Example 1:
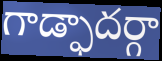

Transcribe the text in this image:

గాడ్ఫాదర్గా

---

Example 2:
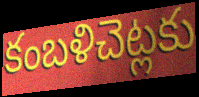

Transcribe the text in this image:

కంబళిచెట్లకు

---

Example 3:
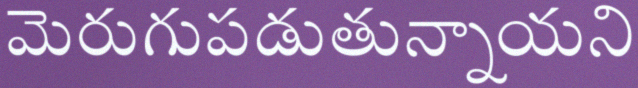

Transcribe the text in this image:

మెరుగుపడుతున్నాయని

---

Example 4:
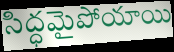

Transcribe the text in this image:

సిద్ధమైపోయాయి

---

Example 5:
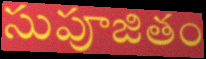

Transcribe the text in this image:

సుపూజితం